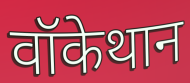
वॉकेथान